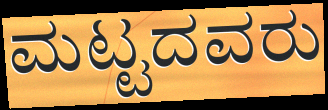
ಮಟ್ಟದವರು